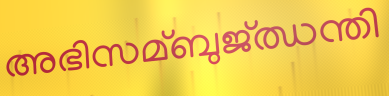
അഭിസമ്ബുജ്ഝന്തി